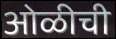
ओळीची